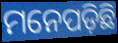
ମନେପଡ଼ିଛି